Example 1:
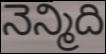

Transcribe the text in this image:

నెన్మిది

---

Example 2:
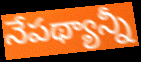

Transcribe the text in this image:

నేపథ్యాన్నీ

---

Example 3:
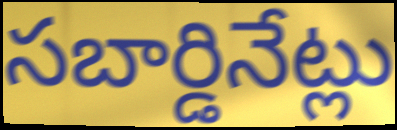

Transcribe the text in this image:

సబార్డినేట్లు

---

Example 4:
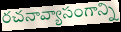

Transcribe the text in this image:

రచనావ్యాసంగాన్ని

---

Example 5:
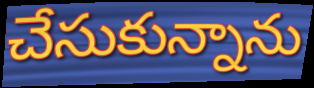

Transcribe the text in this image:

చేసుకున్నాను